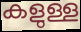
കളുള്ള